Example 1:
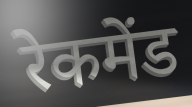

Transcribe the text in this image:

रेकमेंड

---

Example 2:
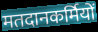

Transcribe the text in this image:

मतदानकर्मियों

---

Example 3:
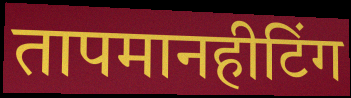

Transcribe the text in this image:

तापमानहीटिंग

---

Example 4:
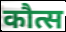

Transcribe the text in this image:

कौत्स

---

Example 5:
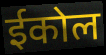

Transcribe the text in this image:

ईकोल